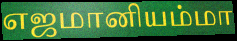
எஜமானியம்மா